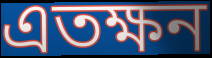
এতক্ষন